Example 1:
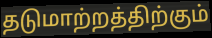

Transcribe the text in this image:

தடுமாற்றத்திற்கும்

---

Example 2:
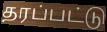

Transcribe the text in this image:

தரப்பட்டு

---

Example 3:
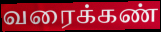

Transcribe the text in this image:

வரைக்கண்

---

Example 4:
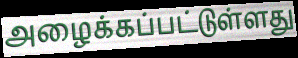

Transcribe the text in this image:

அழைக்கப்பட்டுள்ளது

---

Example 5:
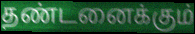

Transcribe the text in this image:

தண்டனைக்கும்